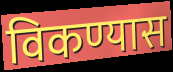
विकण्यास